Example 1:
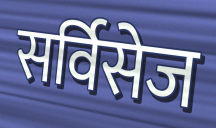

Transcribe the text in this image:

सर्विसेज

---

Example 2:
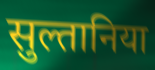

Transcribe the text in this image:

सुल्तानिया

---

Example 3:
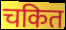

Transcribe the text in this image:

चकित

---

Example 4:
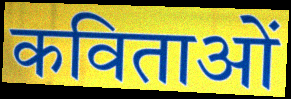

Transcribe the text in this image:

कविताओं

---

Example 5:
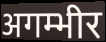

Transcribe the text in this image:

अगम्भीर